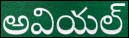
అవియల్